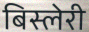
बिस्लेरी